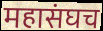
महासंघच